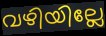
വഴിയില്ലേ